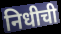
निधीची